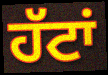
ਹੱਟਾਂ